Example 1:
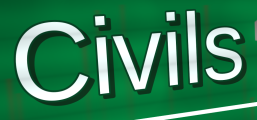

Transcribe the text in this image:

Civils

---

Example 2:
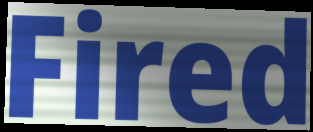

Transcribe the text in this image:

Fired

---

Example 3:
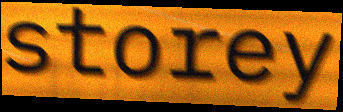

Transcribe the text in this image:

storey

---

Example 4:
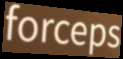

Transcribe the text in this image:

forceps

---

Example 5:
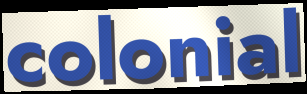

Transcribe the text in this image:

colonial